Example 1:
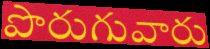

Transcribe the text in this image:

పొరుగువారు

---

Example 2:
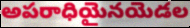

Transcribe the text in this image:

అపరాధియైనయెడల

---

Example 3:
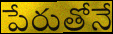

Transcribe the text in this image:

పేరుతోనే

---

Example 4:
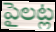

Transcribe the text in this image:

పైలట్ల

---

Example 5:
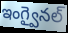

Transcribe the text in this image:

ఇంగ్వైనల్